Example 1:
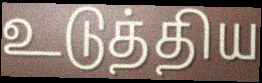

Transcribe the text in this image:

உடுத்திய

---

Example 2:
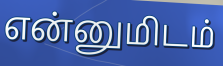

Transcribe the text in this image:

என்னுமிடம்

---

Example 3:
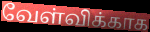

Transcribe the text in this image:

வேள்விக்காக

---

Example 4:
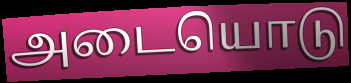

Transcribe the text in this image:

அடையொடு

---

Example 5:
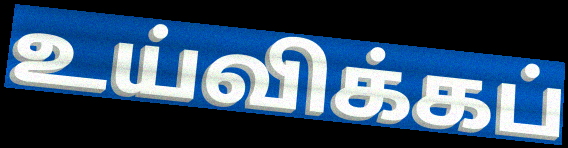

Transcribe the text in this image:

உய்விக்கப்